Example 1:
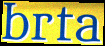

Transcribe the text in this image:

brta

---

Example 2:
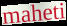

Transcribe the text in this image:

maheti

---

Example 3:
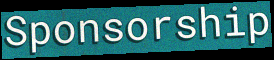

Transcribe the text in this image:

Sponsorship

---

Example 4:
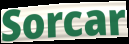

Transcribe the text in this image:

Sorcar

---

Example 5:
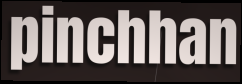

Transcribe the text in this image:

pinchhan